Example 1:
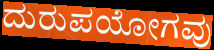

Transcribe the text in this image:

ದುರುಪಯೋಗವು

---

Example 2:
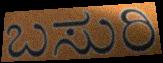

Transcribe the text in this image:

ಬಸುರಿ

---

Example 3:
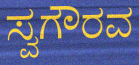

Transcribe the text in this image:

ಸ್ವಗೌರವ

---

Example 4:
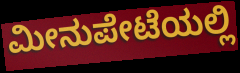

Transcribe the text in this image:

ಮೀನುಪೇಟೆಯಲ್ಲಿ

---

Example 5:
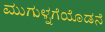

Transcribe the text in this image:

ಮುಗುಳ್ನಗೆಯೊಡನೆ